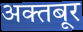
अक्तबूर